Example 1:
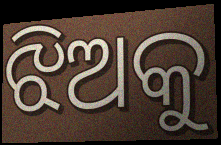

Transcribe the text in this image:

ଝିଅକୁ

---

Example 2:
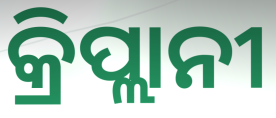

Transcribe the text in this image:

କ୍ରିପ୍ଲାନୀ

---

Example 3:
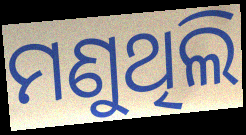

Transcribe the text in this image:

ମଣୁଥିଲି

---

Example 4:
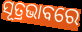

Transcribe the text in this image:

ସୂତ୍ରଭାବରେ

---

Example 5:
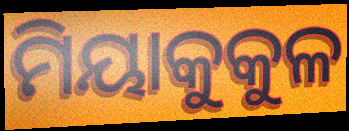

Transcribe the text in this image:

ମିୟାକୁକୁଳ